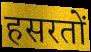
हसरतों